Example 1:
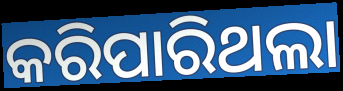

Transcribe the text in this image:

କରିପାରିଥଲା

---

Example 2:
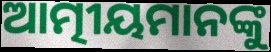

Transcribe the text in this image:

ଆତ୍ମୀୟମାନଙ୍କୁ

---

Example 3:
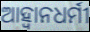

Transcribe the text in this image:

ଆହ୍ବାନଧର୍ମୀ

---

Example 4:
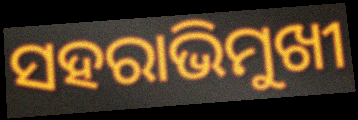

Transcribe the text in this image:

ସହରାଭିମୁଖୀ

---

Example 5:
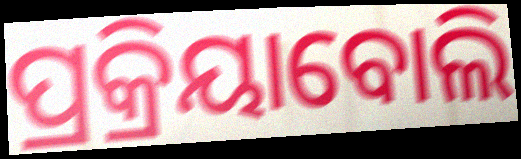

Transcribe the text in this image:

ପ୍ରକ୍ରିୟାବୋଲି